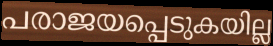
പരാജയപ്പെടുകയില്ല